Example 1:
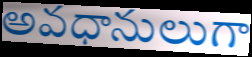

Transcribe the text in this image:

అవధానులుగా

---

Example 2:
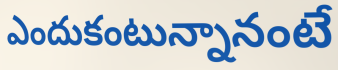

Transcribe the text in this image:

ఎందుకంటున్నానంటే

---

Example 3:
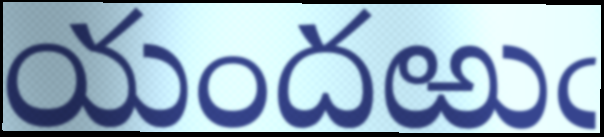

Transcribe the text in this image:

యందఱుఁ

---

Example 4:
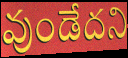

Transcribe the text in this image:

వుండేదని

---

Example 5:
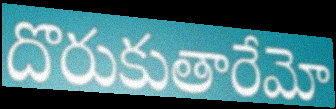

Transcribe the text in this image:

దొరుకుతారేమో